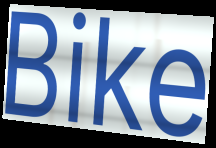
Bike